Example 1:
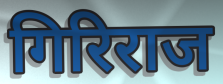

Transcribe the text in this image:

गिरिराज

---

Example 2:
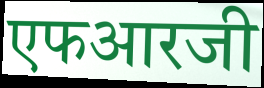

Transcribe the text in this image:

एफआरजी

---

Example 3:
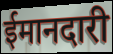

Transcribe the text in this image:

ईमानदारी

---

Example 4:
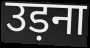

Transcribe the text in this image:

उड़ना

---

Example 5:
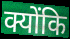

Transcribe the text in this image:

क्योंकि